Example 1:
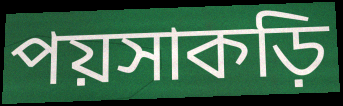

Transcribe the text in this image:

পয়সাকড়ি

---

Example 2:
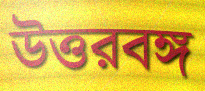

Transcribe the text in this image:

উত্তরবঙ্গ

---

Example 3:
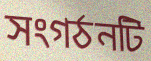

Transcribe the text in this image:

সংগঠনটি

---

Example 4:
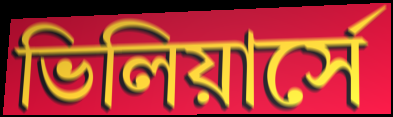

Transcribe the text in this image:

ভিলিয়ার্সে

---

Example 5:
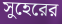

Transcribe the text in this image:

সুহেরের